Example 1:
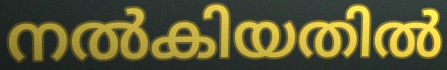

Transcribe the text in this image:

നൽകിയതിൽ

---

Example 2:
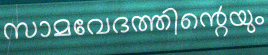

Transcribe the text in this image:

സാമവേദത്തിന്റെയും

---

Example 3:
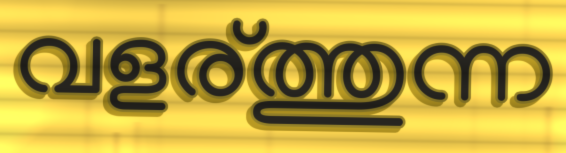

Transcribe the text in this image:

വളര്ത്തുന്ന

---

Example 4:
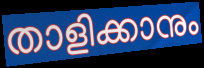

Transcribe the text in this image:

താളിക്കാനും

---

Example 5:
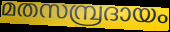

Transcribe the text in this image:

മതസമ്പ്രദായം